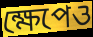
ক্ষেপেও